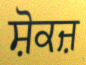
ਸ਼ੋਕਜ਼